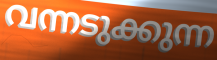
വന്നടുക്കുന്ന